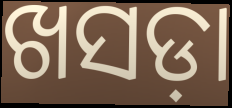
ଖସଡ଼ା